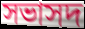
সভাসদ